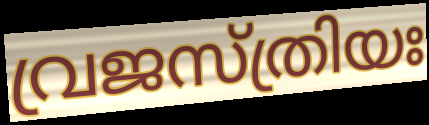
വ്രജസ്ത്രിയഃ